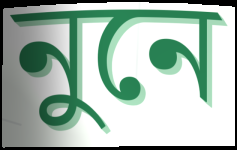
নুনে